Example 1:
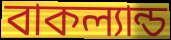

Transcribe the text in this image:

বাকল্যান্ড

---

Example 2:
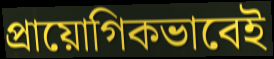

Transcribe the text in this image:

প্রায়োগিকভাবেই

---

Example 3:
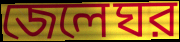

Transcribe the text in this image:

জেলেঘর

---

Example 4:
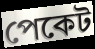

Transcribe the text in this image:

পেকেট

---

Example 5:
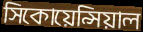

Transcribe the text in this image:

সিকোয়েন্সিয়াল